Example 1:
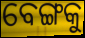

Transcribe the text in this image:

ବେଙ୍ଗକୁ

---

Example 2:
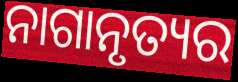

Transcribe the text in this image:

ନାଗାନୃତ୍ୟର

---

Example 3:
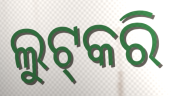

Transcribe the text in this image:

ଲୁଟ୍‍କରି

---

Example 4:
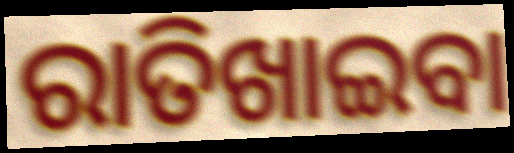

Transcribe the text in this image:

ରାତିଖାଇବା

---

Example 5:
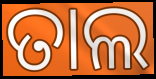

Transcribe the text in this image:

ତାଲ